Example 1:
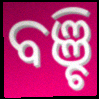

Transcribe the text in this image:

ବଞ୍ଚି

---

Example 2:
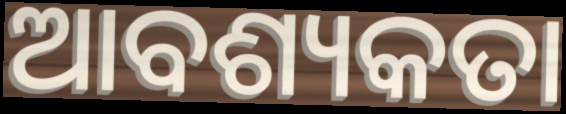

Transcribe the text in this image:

ଆବଶ୍ୟକତା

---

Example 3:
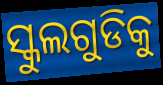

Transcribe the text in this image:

ସ୍କୁଲଗୁଡିକୁ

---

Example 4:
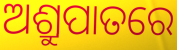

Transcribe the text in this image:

ଅଶ୍ରୁପାତରେ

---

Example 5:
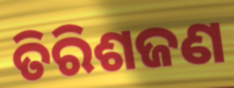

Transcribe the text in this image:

ତିରିଶଜଣ